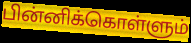
பின்னிக்கொள்ளும்